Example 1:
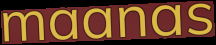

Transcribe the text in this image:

maanas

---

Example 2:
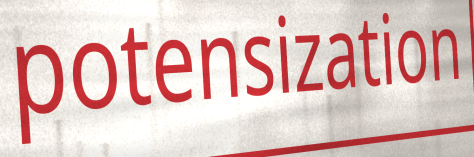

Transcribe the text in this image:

potensization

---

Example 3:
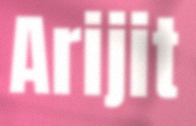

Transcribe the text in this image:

Arijit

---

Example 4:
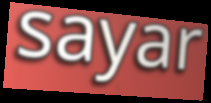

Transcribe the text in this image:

sayar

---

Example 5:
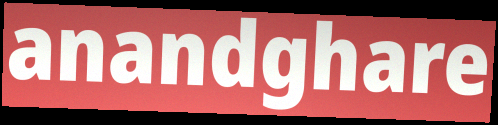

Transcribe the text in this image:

anandghare